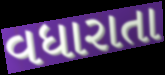
વધારાતા